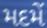
મદમેં